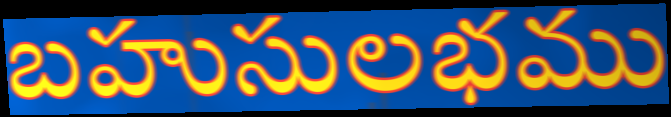
బహుసులభము